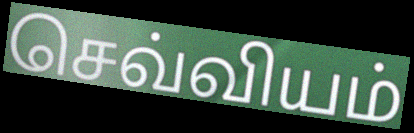
செவ்வியம்